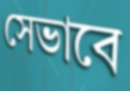
সেভাবে